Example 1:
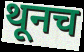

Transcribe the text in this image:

थूनच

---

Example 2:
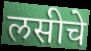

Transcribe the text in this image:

लसीचे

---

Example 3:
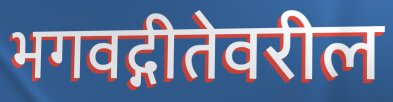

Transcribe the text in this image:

भगवद्गीतेवरील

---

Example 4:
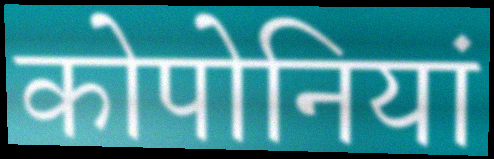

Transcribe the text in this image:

कोपोनियां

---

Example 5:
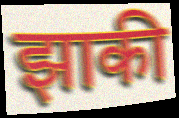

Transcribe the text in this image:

झाकी